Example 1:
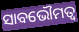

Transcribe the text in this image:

ସାବଭୌମତ୍ୱ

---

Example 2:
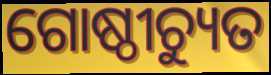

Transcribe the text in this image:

ଗୋଷ୍ଠୀଚ୍ୟୁତ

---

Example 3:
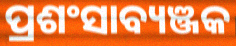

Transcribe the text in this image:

ପ୍ରଶଂସାବ୍ୟଞ୍ଜକ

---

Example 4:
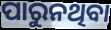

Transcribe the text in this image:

ପାରୁନଥିବା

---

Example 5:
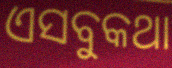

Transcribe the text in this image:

ଏସବୁକଥା